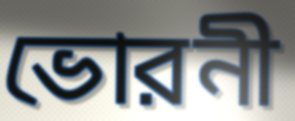
ভোরনী